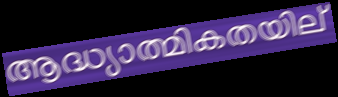
ആദ്ധ്യാത്മികതയില്